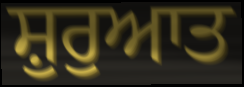
ਸ਼ੁਰੁਆਤ